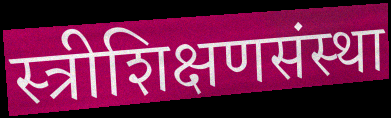
स्त्रीशिक्षणसंस्था